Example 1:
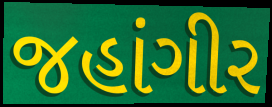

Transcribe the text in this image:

જહાંગીર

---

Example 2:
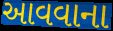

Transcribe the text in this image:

આવવાના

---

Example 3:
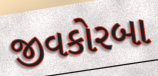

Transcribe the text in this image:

જીવકોરબા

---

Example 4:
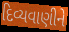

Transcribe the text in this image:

દિવ્યવાણીને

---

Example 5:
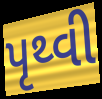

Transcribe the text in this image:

પૃથ્વી